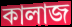
কালাজ